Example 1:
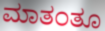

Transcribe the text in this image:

ಮಾತಂತೂ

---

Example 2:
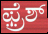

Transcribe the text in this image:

ಫ಼್ರೆಶ್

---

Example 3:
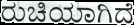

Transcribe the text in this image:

ರುಚಿಯಾಗಿದೆ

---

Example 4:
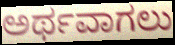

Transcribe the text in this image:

ಅರ್ಥವಾಗಲು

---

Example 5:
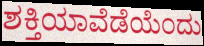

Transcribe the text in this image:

ಶಕ್ತಿಯಾವೆಡೆಯೆಂದು